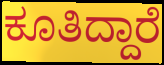
ಕೂತಿದ್ದಾರೆ